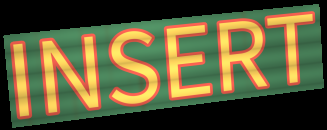
INSERT